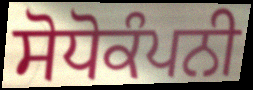
ਸੋਧੋਕੰਪਨੀ